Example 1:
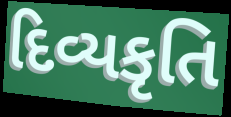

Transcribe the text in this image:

દિવ્યકૃતિ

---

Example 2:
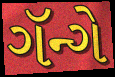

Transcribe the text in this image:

ગૅન્ગે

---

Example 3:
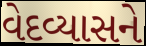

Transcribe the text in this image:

વેદવ્યાસને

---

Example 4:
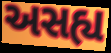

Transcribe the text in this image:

અસહ્ય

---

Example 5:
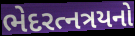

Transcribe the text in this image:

ભેદરત્નત્રયનો